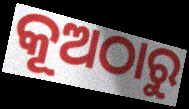
କୂଅଠାରୁ